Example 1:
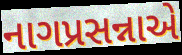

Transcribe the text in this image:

નાગપ્રસન્નાએ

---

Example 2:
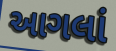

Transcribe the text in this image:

આગલાં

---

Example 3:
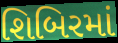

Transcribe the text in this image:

શિબિરમાં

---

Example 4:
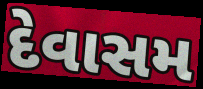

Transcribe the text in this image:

દેવાસમ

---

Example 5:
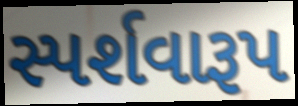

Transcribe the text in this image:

સ્પર્શવારૂપ